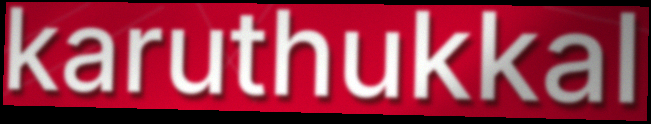
karuthukkal